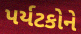
પર્યટકોને